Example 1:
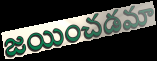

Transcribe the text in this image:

జయించడమా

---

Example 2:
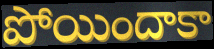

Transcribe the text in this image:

పోయిందాకా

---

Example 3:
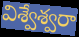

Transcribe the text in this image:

విశ్వేశ్వరా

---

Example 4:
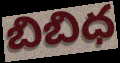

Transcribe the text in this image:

బిబిధ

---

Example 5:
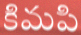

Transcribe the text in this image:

కిమపి